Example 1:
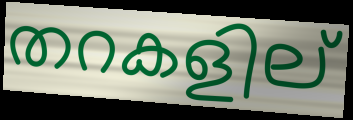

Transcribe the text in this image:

തറകളില്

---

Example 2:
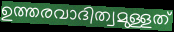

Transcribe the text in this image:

ഉത്തരവാദിത്വമുള്ളത്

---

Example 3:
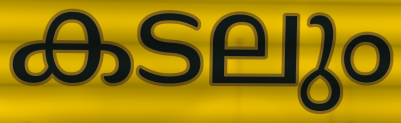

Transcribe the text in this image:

കടലും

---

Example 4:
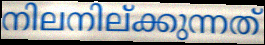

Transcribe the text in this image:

നിലനില്ക്കുന്നത്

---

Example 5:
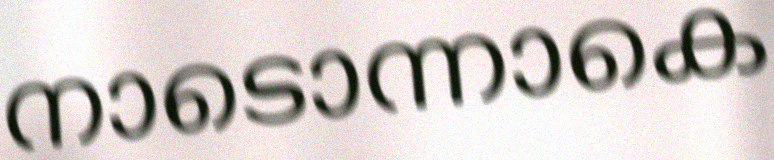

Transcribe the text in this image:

നാടൊന്നാകെ